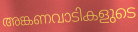
അങ്കണവാടികളുടെ